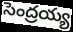
సెంద్రయ్య